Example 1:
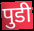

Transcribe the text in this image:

पुडी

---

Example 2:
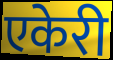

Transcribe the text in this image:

एकेरी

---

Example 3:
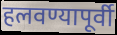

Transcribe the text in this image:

हलवण्यापूर्वी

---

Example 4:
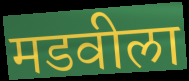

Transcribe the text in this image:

मडवीला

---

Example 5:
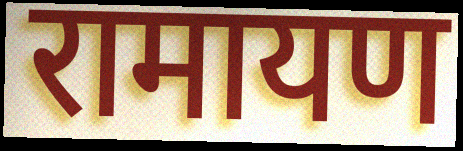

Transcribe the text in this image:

रामायण